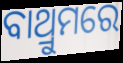
ବାଥ୍ରୁମରେ